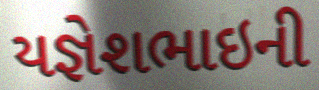
યજ્ઞેશભાઇની